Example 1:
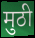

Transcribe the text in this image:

मुठी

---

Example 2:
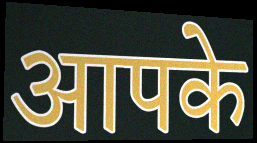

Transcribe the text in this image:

आपके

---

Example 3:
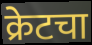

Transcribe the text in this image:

क्रेटचा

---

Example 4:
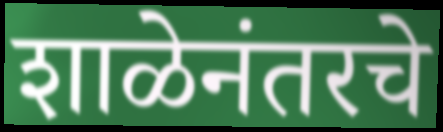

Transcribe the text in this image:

शाळेनंतरचे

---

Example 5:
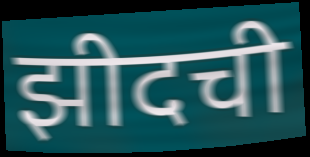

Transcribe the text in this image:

झीदची